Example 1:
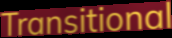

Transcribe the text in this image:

Transitional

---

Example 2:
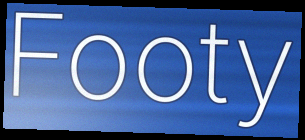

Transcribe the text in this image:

Footy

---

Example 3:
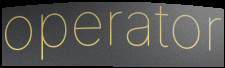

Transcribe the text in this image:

operator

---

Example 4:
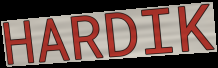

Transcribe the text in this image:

HARDIK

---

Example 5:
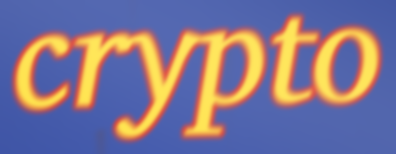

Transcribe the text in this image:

crypto